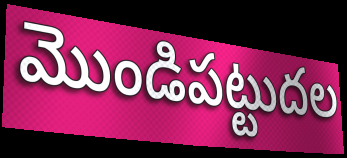
మొండిపట్టుదల